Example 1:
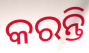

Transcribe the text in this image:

କରନ୍ତି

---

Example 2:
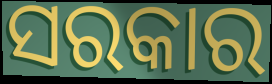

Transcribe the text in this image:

ସରକାର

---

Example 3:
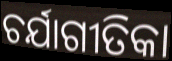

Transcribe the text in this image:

ଚର୍ଯାଗୀତିକା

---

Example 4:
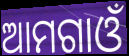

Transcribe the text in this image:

ଆମଗାଓଁ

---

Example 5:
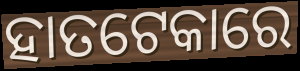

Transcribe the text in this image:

ହାତଟେକାରେ